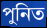
পুনিত